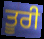
ਤੂਰੀ